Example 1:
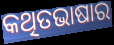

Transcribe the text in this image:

କଥିତଭାଷାର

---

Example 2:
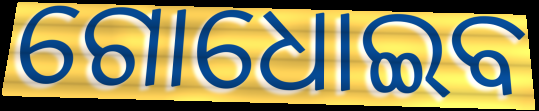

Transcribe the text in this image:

ଗୋଧୋଇବ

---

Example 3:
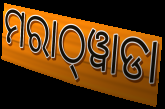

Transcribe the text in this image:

ମରାଠ୍‌ୱାଡା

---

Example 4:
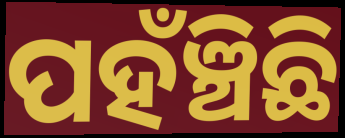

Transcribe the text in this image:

ପହଁଞ୍ଚିଛି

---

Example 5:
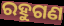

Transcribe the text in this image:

ରହୁଗଣ